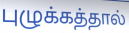
புழுக்கத்தால்